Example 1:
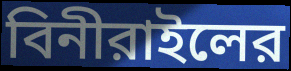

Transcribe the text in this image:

বিনীরাইলের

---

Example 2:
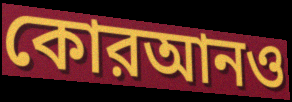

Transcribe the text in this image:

কোরআনও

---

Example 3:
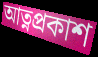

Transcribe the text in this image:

আত্নপ্রকাশ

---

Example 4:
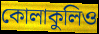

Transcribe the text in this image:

কোলাকুলিও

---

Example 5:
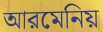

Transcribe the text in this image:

আরমেনিয়